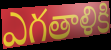
ఎగతాళికి